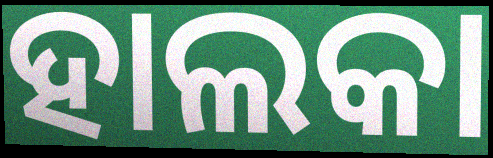
ହାଲକା